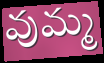
వుమ్మ